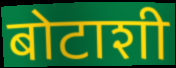
बोटाशी